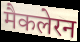
मैकलेरन